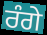
ਰੰਗੇ